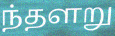
ந்தளறு